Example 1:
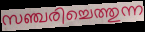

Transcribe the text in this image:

സഞ്ചരിച്ചെത്തുന്ന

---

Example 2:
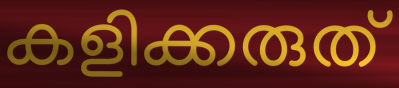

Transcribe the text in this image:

കളിക്കരുത്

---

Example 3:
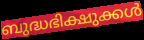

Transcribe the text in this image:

ബുദ്ധഭിക്ഷുക്കൾ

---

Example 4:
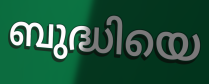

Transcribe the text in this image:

ബുദ്ധിയെ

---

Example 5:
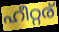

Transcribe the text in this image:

ഹീറ്റര്